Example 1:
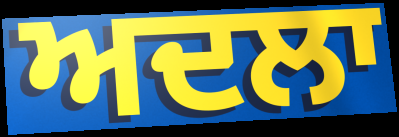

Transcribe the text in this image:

ਅਦਲਾ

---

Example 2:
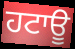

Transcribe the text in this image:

ਹਟਾਊ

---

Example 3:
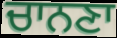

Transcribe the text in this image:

ਚਾਨਣਾ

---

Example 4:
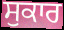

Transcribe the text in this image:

ਸੁਕਾਰ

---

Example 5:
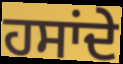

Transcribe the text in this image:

ਹਸਾਂਦੇ